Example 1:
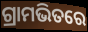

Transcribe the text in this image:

ଗ୍ରାମଭିତରେ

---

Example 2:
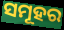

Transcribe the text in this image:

ସମୂହର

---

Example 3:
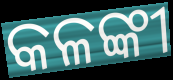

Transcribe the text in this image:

କଳଙ୍କୀ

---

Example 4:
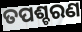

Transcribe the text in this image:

ତପଶ୍ଚରଣ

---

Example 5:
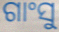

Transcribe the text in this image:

ଗାଂସୁ